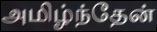
அமிழ்ந்தேன்